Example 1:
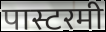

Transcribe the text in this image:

पास्टरमी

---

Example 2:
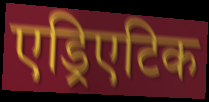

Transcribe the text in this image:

एड्रिएटिक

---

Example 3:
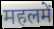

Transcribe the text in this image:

महलमें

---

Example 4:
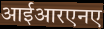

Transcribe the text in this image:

आईआरएनए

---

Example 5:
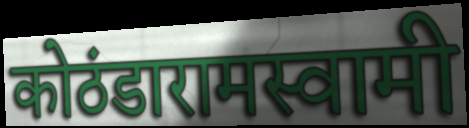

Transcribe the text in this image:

कोठंडारामस्वामी